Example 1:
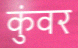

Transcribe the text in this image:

कुंवर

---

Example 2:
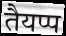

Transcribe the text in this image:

तैयप्प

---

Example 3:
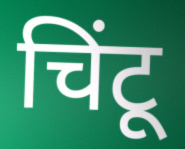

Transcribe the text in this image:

चिंटू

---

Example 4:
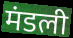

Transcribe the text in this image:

मंडली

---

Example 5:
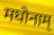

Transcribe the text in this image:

मघोनाम्